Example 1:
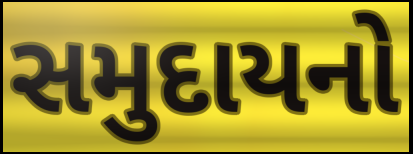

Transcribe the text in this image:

સમુદાયનો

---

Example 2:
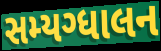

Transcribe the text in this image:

સમ્યગ્ધાલન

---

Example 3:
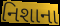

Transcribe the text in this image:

નિશાના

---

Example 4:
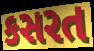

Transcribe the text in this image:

કસરત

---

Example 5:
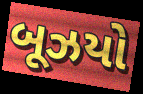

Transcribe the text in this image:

બૂઝયો